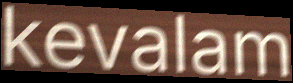
kevalam